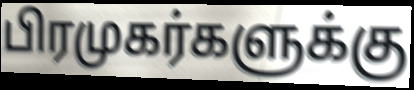
பிரமுகர்களுக்கு